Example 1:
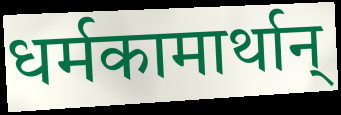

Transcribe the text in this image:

धर्मकामार्थान्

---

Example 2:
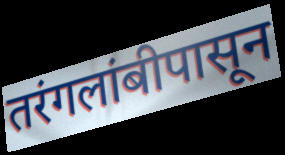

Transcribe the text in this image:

तरंगलांबीपासून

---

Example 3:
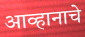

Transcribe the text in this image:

आव्हानाचे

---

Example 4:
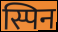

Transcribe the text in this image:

स्पिन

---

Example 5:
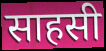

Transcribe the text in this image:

साहसी